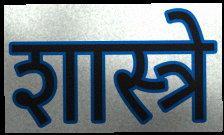
शास्त्रे